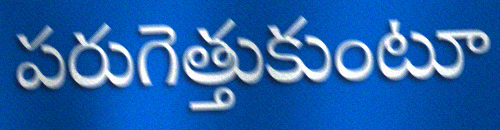
పరుగెత్తుకుంటూ